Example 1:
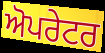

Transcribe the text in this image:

ਅੋਪਰੇਟਰ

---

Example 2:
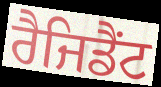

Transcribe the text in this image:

ਰੈਜਿਡੈਂਟ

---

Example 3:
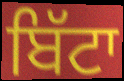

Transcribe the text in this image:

ਬਿੱਟਾ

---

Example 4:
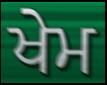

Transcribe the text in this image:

ਖੇਮ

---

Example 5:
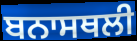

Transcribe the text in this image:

ਬਨਾਸਥਲੀ